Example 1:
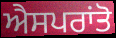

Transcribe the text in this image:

ਐਸਪਰਾਂਤੋ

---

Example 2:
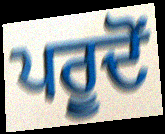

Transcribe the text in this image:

ਪਰੂਦੋਂ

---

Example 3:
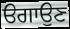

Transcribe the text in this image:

ੳਗਾਉਣ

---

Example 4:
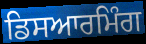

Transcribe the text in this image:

ਡਿਸਆਰਮਿੰਗ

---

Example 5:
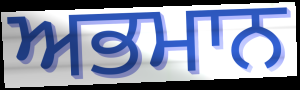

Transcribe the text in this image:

ਅਭਮਾਨ